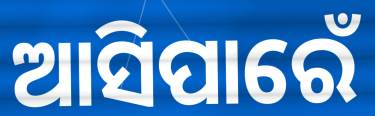
ଆସିପାରେଁ